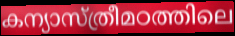
കന്യാസ്ത്രീമഠത്തിലെ